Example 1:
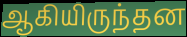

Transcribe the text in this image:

ஆகியிருந்தன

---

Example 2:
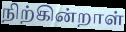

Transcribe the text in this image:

நிற்கின்றாள்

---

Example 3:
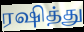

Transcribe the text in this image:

ரஷித்து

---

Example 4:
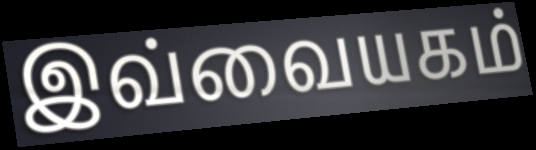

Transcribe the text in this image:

இவ்வையகம்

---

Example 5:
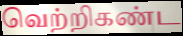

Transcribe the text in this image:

வெற்றிகண்ட